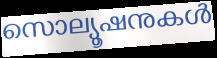
സൊല്യൂഷനുകൾ